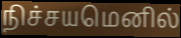
நிச்சயமெனில்